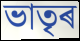
ভাতৃৰ